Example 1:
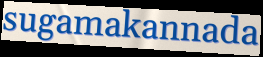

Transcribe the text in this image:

sugamakannada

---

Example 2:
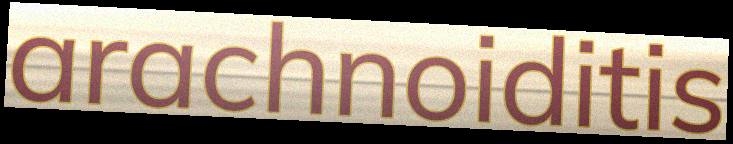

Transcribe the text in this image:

arachnoiditis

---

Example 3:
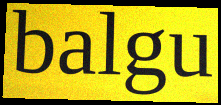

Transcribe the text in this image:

balgu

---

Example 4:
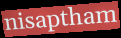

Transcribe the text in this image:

nisaptham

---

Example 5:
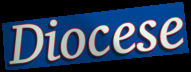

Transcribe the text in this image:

Diocese